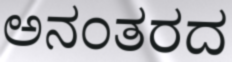
ಅನಂತರದ